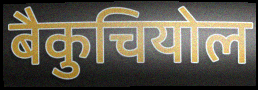
बैकुचियोल